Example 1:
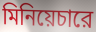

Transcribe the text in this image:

মিনিয়েচারে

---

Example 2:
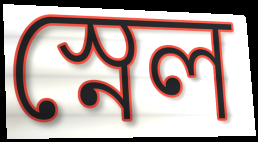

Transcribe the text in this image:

স্নেল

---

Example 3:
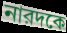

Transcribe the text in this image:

নারদকে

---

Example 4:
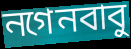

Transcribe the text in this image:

নগেনবাবু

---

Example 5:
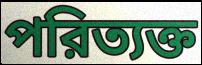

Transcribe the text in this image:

পরিত্যক্ত